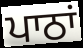
ਪਾਠਾਂ